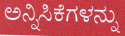
ಅನ್ನಿಸಿಕೆಗಳನ್ನು